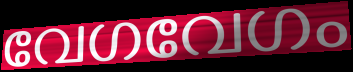
വേഗവേഗം